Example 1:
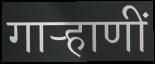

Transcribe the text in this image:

गाऱ्हाणीं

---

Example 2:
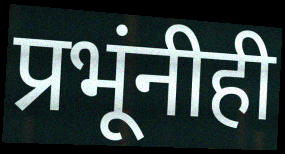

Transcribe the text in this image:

प्रभूंनीही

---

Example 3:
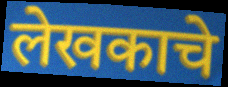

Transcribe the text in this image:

लेखकाचे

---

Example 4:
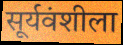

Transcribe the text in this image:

सूर्यवंशीला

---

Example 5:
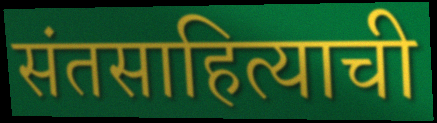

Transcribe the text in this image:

संतसाहित्याची